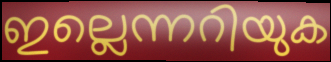
ഇല്ലെന്നറിയുക